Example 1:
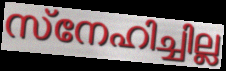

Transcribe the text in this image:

സ്‌നേഹിച്ചില്ല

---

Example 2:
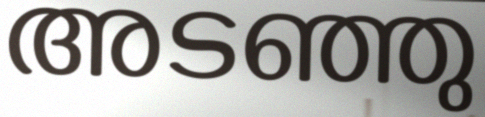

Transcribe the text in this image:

അടഞ്ഞു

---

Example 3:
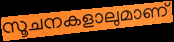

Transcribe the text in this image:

സൂചനകളാലുമാണ്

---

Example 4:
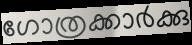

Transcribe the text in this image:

ഗോത്രക്കാർക്കു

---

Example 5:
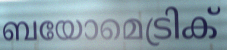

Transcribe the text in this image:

ബയോമെട്രിക്